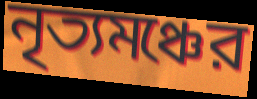
নৃত্যমঞ্চের